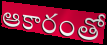
ఆకారంతో